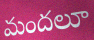
మందలూ